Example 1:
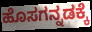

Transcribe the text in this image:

ಹೊಸಗನ್ನಡಕ್ಕೆ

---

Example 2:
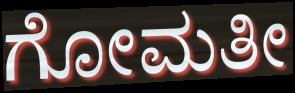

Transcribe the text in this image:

ಗೋಮತೀ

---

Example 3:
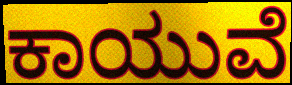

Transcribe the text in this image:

ಕಾಯುವೆ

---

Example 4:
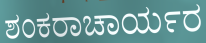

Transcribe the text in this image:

ಶಂಕರಾಚಾರ್ಯರ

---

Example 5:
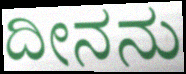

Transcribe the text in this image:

ದೀನನು